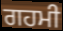
ਗਹਮੀ